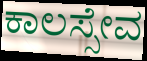
ಕಾಲಸ್ಸೇವ